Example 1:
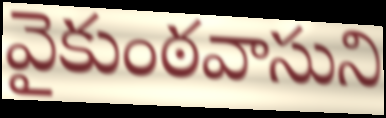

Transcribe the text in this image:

వైకుంఠవాసుని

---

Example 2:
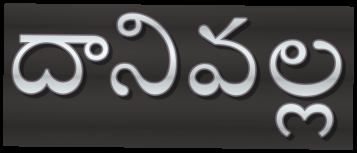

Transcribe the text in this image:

దానివల్ల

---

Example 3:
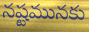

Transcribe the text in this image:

నష్టమునకు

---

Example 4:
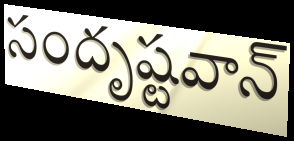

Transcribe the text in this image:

సందృష్టవాన్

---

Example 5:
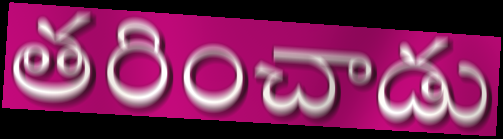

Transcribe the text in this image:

తరించాడు